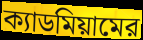
ক্যাডমিয়ামের